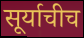
सूर्याचीच